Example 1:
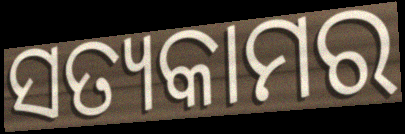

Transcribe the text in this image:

ସତ୍ୟକାମର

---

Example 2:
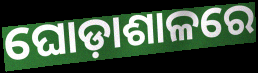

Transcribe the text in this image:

ଘୋଡ଼ାଶାଳରେ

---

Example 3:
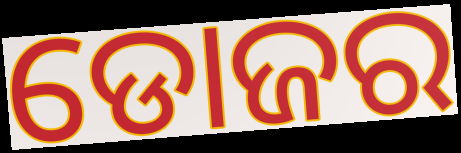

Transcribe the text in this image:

ଡୋଜର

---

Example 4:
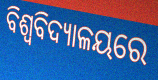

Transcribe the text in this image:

ବିଶ୍ବବିଦ୍ୟାଳୟରେ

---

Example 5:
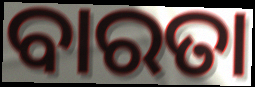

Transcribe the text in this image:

ବାରତା